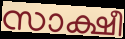
സാക്ഷീ